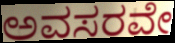
ಅವಸರವೇ